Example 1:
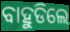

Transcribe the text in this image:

ବାହୁଡିଲେ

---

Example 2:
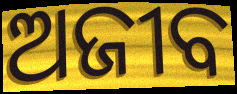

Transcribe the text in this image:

ଅଜୀବ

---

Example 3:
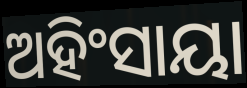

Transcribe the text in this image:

ଅହିଂସାୟା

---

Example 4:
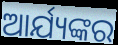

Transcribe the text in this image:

ଆର୍ଯ୍ୟଙ୍କର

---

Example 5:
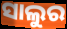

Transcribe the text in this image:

ସାଲୁର